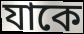
যাকে